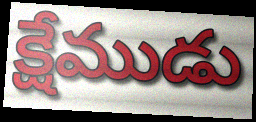
క్షేముడు